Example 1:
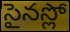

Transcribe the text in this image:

సైనస్లో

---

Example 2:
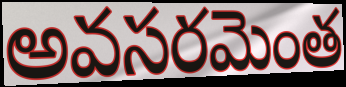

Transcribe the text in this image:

అవసరమెంత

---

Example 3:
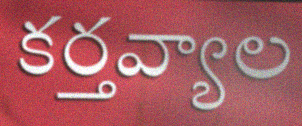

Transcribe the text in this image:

కర్తవ్యాల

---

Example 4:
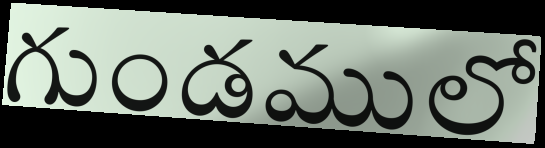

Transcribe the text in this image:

గుండములో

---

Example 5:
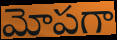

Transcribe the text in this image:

మోపగా